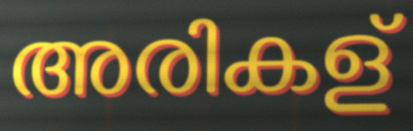
അരികള്